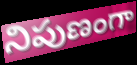
నిపుణంగా